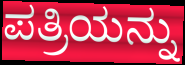
ಪತ್ರಿಯನ್ನು